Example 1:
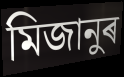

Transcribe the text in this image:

মিজানুৰ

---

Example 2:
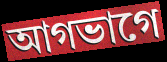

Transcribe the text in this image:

আগভাগে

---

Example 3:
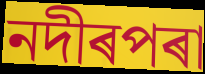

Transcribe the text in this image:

নদীৰপৰা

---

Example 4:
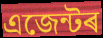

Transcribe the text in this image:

এজেন্টৰ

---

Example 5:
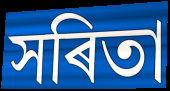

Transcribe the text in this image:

সৰিতা